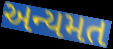
અન્યમત